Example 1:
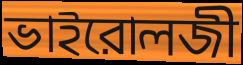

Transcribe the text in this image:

ভাইরোলজী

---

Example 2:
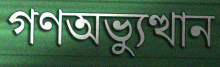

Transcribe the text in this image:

গণঅভ্যুত্থান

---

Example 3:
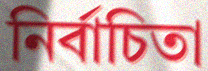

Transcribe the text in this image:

নির্বাচিতা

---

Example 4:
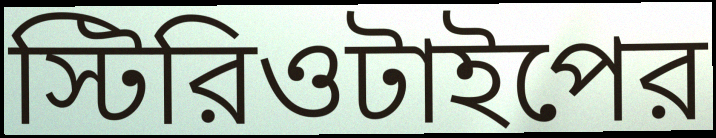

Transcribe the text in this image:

স্টিরিওটাইপের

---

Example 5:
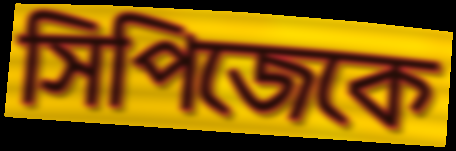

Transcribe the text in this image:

সিপিজেকে